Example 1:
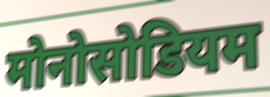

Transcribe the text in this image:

मोनोसोडियम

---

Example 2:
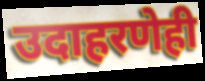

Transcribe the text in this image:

उदाहरणेही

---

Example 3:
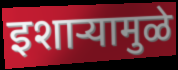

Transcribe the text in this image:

इशाऱ्यामुळे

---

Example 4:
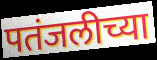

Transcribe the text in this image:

पतंजलीच्या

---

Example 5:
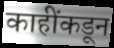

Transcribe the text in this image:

काहींकडून